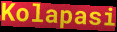
Kolapasi